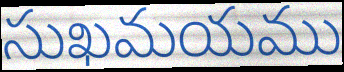
సుఖమయము